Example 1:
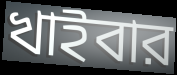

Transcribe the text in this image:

খাইবার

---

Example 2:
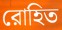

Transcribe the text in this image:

রোহিত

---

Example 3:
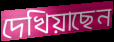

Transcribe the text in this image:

দেখিয়াছেন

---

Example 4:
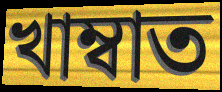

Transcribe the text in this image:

খাম্বাত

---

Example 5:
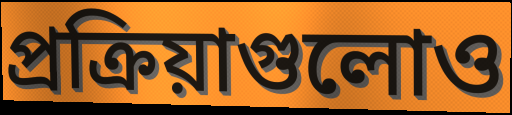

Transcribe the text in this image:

প্রক্রিয়াগুলোও